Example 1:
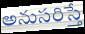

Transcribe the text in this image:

అనుసరిస్తే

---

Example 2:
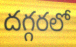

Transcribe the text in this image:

దగ్గరలో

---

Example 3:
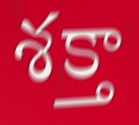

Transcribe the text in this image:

శక్తా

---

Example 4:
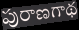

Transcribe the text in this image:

పురాణగాథ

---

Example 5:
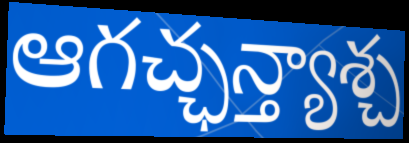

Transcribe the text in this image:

ఆగచ్ఛన్త్యాశ్చ